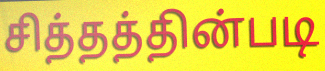
சித்தத்தின்படி